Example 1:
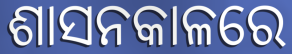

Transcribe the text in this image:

ଶାସନକାଳରେ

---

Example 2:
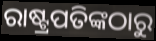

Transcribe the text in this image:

ରାଷ୍ଟ୍ରପତିଙ୍କଠାରୁ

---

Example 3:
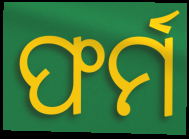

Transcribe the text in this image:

ଫର୍ମ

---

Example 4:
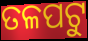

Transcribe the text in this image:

ତଳପଟୁ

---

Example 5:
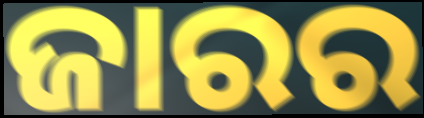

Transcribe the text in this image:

ଜାରର